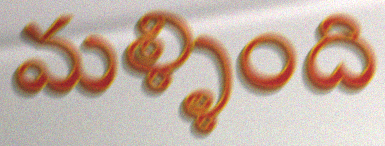
మళ్ళింది